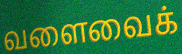
வளைவைக்